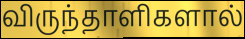
விருந்தாளிகளால்